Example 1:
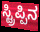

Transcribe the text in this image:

ಸ್ಟ್ರಿಪ್ಪಿನ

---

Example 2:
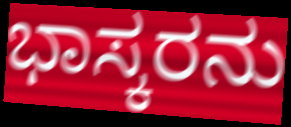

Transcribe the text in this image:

ಭಾಸ್ಕರನು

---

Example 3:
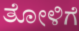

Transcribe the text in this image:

ತೋಳಿಗೆ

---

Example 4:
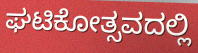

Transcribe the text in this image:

ಘಟಿಕೋತ್ಸವದಲ್ಲಿ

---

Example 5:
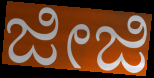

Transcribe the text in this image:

ಜೀಜಿ